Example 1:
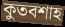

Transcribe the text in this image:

কুতবশাহ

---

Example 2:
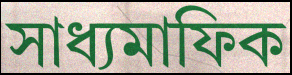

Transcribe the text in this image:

সাধ্যমাফিক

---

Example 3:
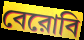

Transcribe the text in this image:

বেরোবি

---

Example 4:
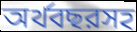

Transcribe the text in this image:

অর্থবছরসহ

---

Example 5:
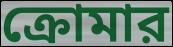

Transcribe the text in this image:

ক্রোমার